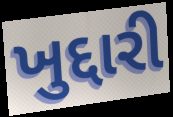
ખુદ્દારી